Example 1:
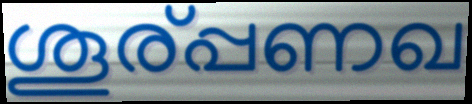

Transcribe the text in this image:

ശൂര്പ്പണഖ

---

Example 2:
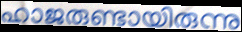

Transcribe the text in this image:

ഹാജരുണ്ടായിരുന്നു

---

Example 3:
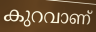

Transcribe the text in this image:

കുറവാണ്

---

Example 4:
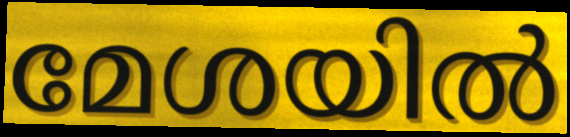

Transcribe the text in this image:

മേശയിൽ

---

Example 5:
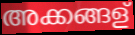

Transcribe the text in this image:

അക്കങ്ങള്